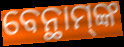
ବେନ୍ଥାମ୍‌ଙ୍କ